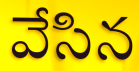
వేసిన